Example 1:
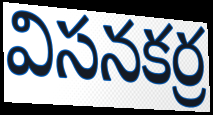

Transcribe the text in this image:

విసనకర్ర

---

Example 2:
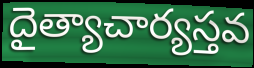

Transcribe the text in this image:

దైత్యాచార్యస్తవ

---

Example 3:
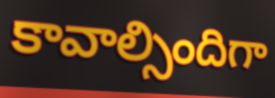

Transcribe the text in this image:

కావాల్సిందిగా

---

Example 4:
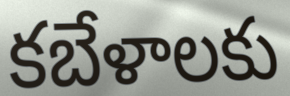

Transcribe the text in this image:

కబేళాలకు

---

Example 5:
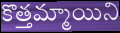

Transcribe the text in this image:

కొత్తమ్మాయిని